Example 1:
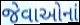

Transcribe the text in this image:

જેવાઓનાં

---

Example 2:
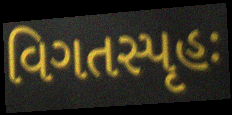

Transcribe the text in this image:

વિગતસ્પૃહઃ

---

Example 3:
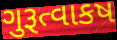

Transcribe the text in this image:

ગુરૂત્વાકષ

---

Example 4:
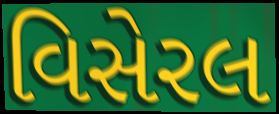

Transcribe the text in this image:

વિસેરલ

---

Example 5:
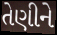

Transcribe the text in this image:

તેણીને